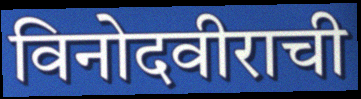
विनोदवीराची